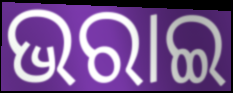
ଭରାଇ